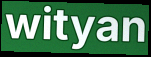
wityan